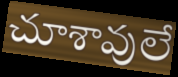
చూశావులే